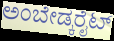
ಅಂಬೇಡ್ಕರೈಟ್